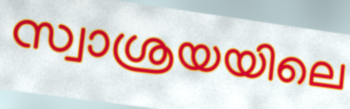
സ്വാശ്രയയിലെ